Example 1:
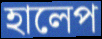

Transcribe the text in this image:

হালেপ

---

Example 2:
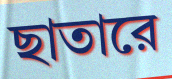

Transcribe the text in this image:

ছাতারে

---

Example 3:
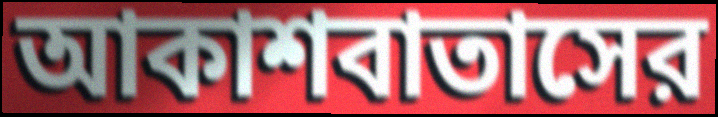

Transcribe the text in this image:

আকাশবাতাসের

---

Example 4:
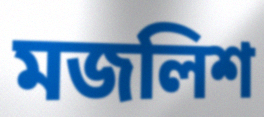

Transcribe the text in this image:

মজলিশ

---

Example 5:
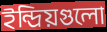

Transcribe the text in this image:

ইন্দ্রিয়গুলো